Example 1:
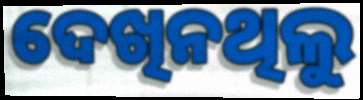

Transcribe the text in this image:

ଦେଖିନଥିଲୁ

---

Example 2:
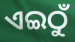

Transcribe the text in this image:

ଏଇଠୁଁ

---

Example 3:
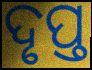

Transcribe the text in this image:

ଦୃପ୍ତ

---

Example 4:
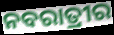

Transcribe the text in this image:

ନବରାତ୍ରୀର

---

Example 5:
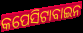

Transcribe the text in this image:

କପେସିଟାବାଇନ